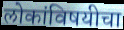
लोकांविषयीचा